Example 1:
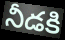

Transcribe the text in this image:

నీడకి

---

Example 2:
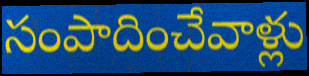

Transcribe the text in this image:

సంపాదించేవాళ్లు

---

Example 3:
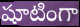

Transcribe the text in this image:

షూటింగా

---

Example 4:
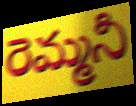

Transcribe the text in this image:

రెమ్మనీ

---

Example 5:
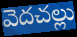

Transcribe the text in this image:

వెదచల్లు